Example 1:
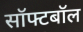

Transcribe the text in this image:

सॉफ्टबॉल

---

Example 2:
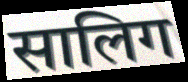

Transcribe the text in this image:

सालिग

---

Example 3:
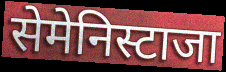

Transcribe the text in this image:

सेमेनिस्टाजा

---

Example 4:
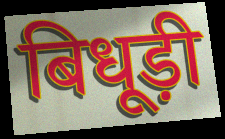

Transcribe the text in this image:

बिधूड़ी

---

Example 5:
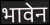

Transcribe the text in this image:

भावेन